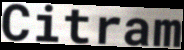
Citram